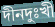
দীনদুঃখী